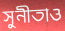
সুনীতাও